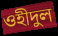
ওহীদুল